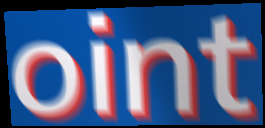
oint